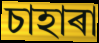
চাহাৰা